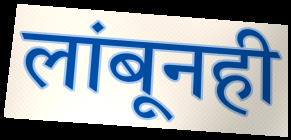
लांबूनही